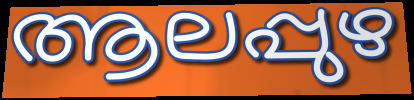
ആലപ്പുഴ